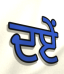
ਦਏਂ